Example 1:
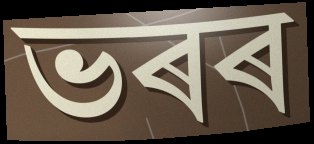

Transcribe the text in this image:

ভৰৰ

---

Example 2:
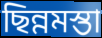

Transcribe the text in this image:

ছিন্নমস্তা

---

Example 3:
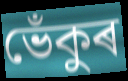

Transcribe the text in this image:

ভেঁকুৰ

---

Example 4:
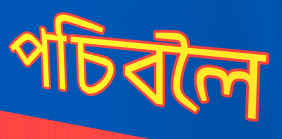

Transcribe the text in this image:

পচিবলৈ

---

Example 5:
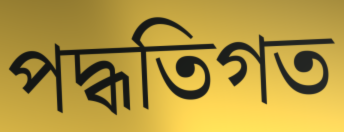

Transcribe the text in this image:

পদ্ধতিগত